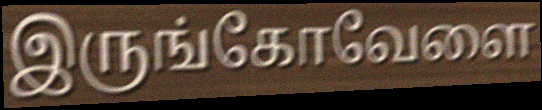
இருங்கோவேளை